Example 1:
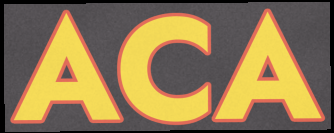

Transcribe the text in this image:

ACA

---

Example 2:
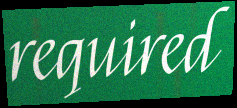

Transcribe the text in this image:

required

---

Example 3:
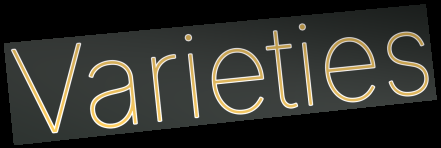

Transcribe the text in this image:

Varieties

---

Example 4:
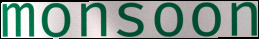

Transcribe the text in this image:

monsoon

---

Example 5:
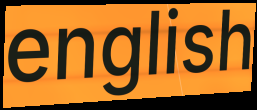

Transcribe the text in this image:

english